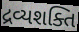
દ્રવ્યશક્તિ